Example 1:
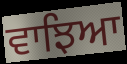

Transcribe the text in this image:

ਵਾਝਿਆ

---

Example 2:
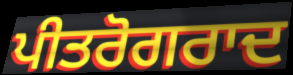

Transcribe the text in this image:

ਪੀਤਰੋਗਰਾਦ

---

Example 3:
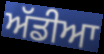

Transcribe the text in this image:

ਅੱਡੀਆ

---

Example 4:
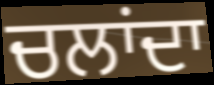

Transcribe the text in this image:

ਚਲਾਂਦਾ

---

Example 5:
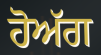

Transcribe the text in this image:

ਹੋਅੱਗ